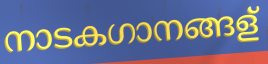
നാടകഗാനങ്ങള്